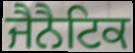
ਜੈਨੈਟਿਕ